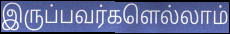
இருப்பவர்களெல்லாம்